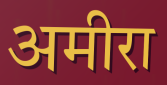
अमीरा